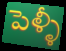
పెళ్ళీ